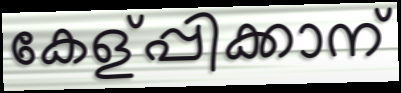
കേള്പ്പിക്കാന്